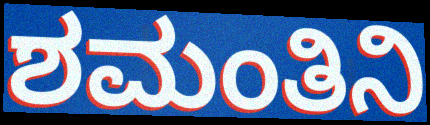
ಶಮಂತಿನಿ